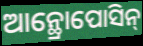
ଆନ୍ଥ୍ରୋପୋସିନ୍